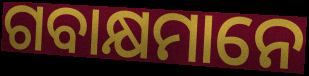
ଗବାକ୍ଷମାନେ